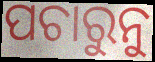
ପଚାରୁନୁ